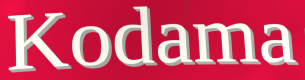
Kodama